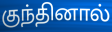
குந்தினால்